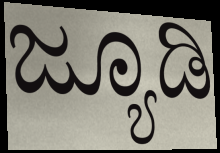
ಜ್ಯೂಡಿ